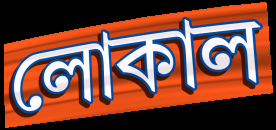
লোকাল